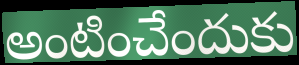
అంటించేందుకు